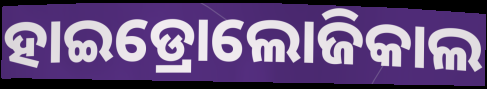
ହାଇଡ୍ରୋଲୋଜିକାଲ